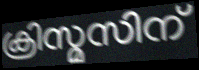
ക്രിസ്മസിന്